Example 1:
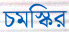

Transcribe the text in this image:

চমস্কির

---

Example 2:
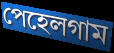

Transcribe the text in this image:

পেহেলগাম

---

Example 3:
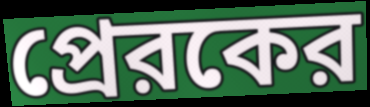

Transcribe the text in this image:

প্রেরকের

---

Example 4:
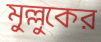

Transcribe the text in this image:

মুল্লুকের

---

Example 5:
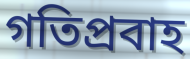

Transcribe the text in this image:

গতিপ্রবাহ